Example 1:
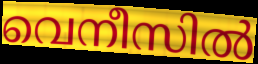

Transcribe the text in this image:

വെനീസിൽ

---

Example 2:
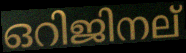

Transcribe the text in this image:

ഒറിജിനല്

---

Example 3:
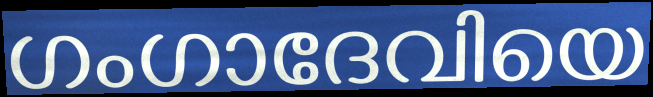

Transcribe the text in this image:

ഗംഗാദേവിയെ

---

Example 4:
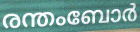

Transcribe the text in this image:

രന്തംബോർ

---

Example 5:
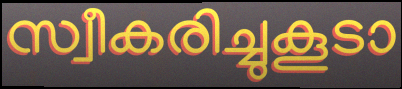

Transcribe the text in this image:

സ്വീകരിച്ചുകൂടാ